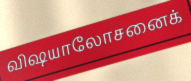
விஷயாலோசனைக்